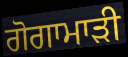
ਗੋਗਾਮਾੜੀ